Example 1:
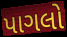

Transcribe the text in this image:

પાગલો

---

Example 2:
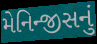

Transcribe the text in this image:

મેનિન્જીસનું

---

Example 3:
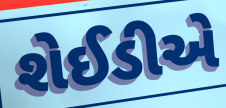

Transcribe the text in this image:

શેઈડીએ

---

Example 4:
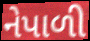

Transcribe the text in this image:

નેપાળી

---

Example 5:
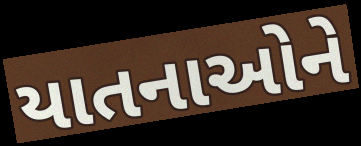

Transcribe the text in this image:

યાતનાઓને